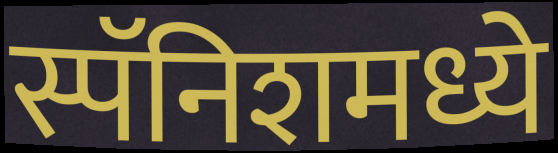
स्पॅनिशमध्ये